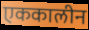
एककालीन